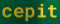
cepit